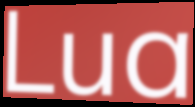
Lua